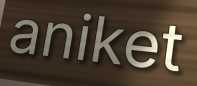
aniket